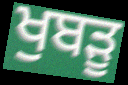
ਖੁਬੜੂ